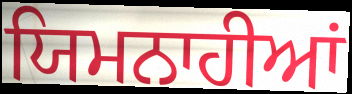
ਯਿਮਨਾਹੀਆਂ